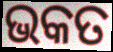
ଭକତ